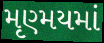
મૃણ્મયમાં